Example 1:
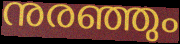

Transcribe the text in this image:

നുരഞ്ഞും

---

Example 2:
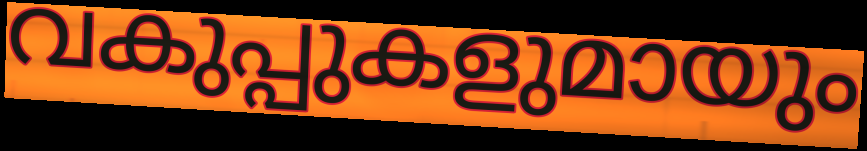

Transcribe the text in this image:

വകുപ്പുകളുമായും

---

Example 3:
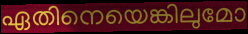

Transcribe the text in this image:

ഏതിനെയെങ്കിലുമോ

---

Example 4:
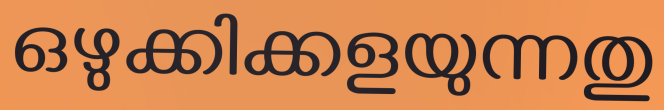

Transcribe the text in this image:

ഒഴുക്കിക്കളയുന്നതു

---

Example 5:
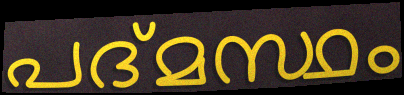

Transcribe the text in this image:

പദ്മസ്ഥം